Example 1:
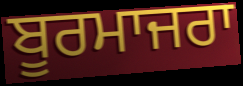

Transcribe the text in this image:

ਬੂਰਮਾਜਰਾ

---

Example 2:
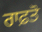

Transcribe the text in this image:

ਰਾਫ਼ਤੋ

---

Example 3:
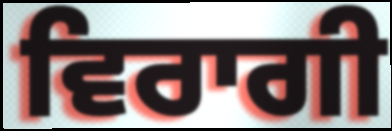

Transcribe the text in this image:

ਵਿਰਾਗੀ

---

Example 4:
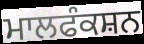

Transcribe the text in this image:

ਮਾਲਫੰਕਸ਼ਨ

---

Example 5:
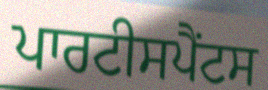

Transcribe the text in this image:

ਪਾਰਟੀਸਪੈਂਟਸ